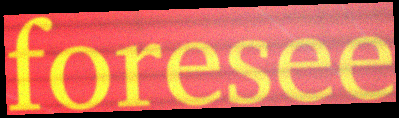
foresee